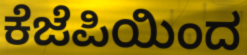
ಕೆಜೆಪಿಯಿಂದ